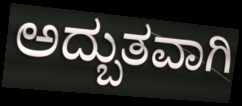
ಅದ್ಬುತವಾಗಿ